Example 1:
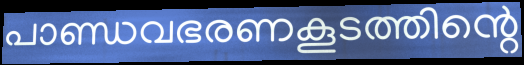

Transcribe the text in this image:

പാണ്ഡവഭരണകൂടത്തിന്റെ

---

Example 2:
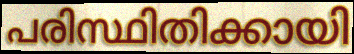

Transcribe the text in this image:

പരിസ്ഥിതിക്കായി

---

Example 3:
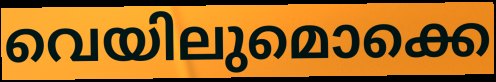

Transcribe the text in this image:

വെയിലുമൊക്കെ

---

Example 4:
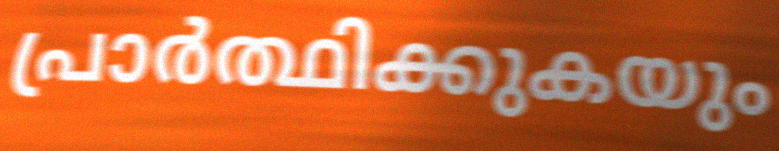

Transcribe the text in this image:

പ്രാർത്ഥിക്കുകയും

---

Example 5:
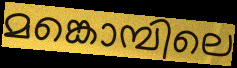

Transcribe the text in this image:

മങ്കൊമ്പിലെ